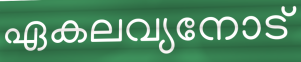
ഏകലവ്യനോട്